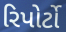
રિપોર્ટો